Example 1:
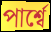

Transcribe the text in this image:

পার্শ্বে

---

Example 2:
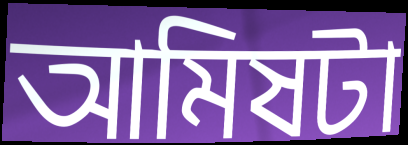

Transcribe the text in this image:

আমিষটা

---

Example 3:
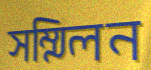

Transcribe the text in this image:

সম্মিলন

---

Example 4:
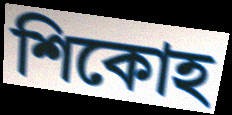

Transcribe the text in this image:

শিকোহ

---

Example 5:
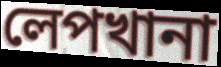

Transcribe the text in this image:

লেপখানা